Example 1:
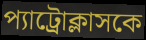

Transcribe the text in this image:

প্যাট্রোক্লাসকে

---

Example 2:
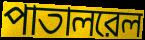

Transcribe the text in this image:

পাতালরেল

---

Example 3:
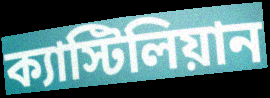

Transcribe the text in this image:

ক্যাস্টিলিয়ান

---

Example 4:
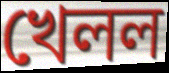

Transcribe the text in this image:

খেলল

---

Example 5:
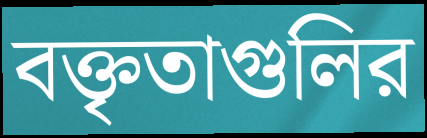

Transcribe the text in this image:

বক্তৃতাগুলির